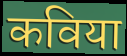
कविया